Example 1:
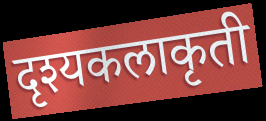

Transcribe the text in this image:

दृश्यकलाकृती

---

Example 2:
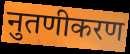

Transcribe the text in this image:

नुतणीकरण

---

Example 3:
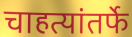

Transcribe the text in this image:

चाहत्यांतर्फे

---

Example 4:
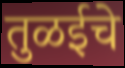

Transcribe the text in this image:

तुळईचे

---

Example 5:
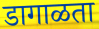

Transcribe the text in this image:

डागाळता